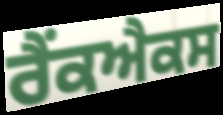
ਰੈਂਕਐਕਸ